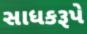
સાધકરૂપે